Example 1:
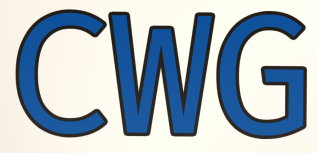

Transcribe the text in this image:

CWG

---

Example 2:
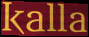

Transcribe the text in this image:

kalla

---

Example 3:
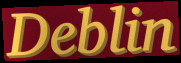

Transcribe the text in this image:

Deblin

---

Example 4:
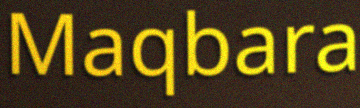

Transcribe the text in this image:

Maqbara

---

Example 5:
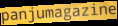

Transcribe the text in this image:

panjumagazine